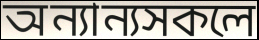
অন্যান্যসকলে